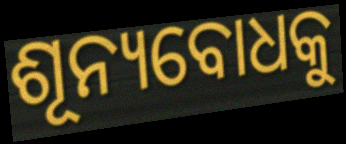
ଶୂନ୍ୟବୋଧକୁ